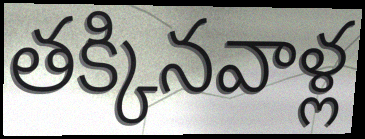
తక్కినవాళ్ల